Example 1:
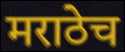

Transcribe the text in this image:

मराठेच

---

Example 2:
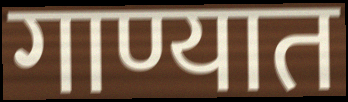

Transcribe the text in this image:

गाण्यात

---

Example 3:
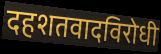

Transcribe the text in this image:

दहशतवादविरोधी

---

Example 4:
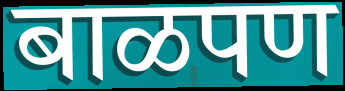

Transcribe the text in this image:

बाळपण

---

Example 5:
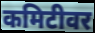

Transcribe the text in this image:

कमिटीवर